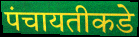
पंचायतीकडे